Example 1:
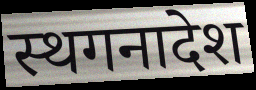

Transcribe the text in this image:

स्थगनादेश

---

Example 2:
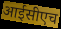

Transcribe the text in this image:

आईसीएच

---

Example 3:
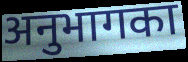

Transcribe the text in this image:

अनुभागका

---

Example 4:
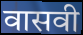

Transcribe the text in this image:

वासवी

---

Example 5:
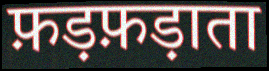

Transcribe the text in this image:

फ़ड़फ़ड़ाता